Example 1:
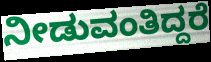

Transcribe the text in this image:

ನೀಡುವಂತಿದ್ದರೆ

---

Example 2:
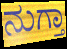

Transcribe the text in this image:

ನುಗ್ತಾ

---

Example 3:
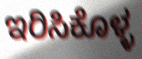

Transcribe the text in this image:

ಇರಿಸಿಕೊಳ್ಳ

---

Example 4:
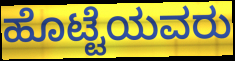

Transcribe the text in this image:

ಹೊಟ್ಟೆಯವರು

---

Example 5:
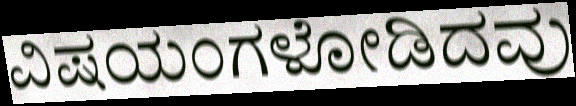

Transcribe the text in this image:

ವಿಷಯಂಗಳೋಡಿದವು